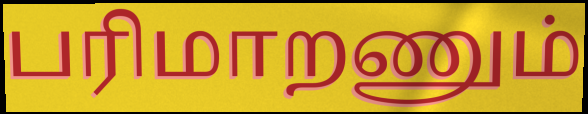
பரிமாறணும்